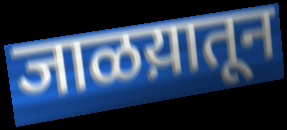
जाळय़ातून